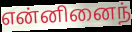
என்னினைந்